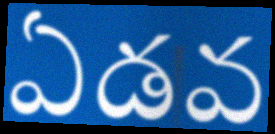
ఏడవ